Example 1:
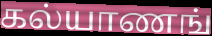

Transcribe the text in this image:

கல்யாணங்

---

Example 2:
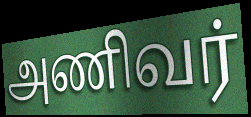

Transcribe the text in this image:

அணிவர்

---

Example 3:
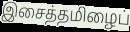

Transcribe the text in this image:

இசைத்தமிழைப்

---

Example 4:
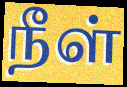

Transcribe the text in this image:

நீள்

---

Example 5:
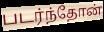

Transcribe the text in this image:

படர்ந்தோன்